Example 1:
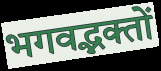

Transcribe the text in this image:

भगवद्भक्तों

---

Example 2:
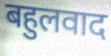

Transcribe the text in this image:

बहुलवाद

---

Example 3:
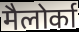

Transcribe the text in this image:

मैलोर्का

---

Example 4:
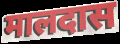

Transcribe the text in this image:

मालदास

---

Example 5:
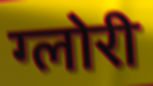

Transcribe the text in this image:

ग्लोरी